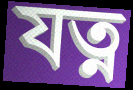
যত্ন